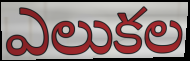
ఎలుకల